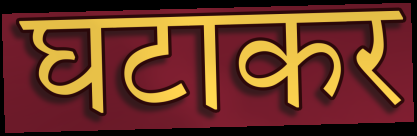
घटाकर